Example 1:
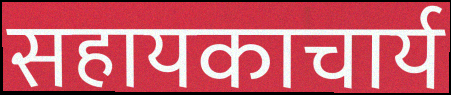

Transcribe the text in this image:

सहायकाचार्य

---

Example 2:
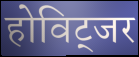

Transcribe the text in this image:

होविट्जर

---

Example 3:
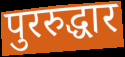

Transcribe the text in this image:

पुररुद्धार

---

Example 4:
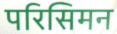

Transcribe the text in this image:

परिसिमन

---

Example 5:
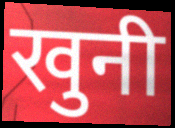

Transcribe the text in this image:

खुनी